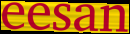
eesan